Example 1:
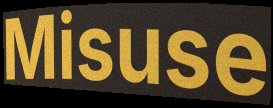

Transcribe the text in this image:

Misuse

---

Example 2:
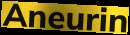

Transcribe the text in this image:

Aneurin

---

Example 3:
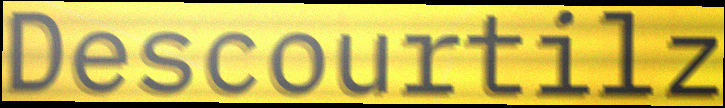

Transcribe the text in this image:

Descourtilz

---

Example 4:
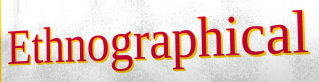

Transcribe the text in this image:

Ethnographical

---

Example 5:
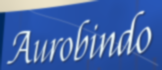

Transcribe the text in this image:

Aurobindo